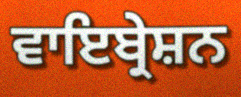
ਵਾਇਬ੍ਰੇਸ਼ਨ